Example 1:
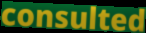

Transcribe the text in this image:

consulted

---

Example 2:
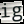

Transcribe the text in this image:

ig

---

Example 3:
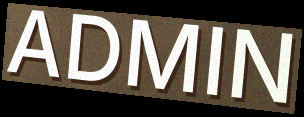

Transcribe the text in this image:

ADMIN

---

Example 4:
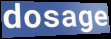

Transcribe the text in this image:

dosage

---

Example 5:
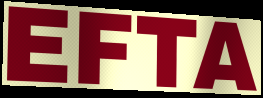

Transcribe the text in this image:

EFTA